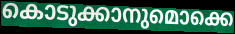
കൊടുക്കാനുമൊക്കെ